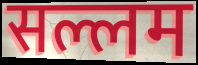
सल्लम